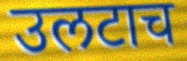
उलटाच